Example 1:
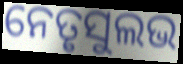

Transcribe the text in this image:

ନେତୃସୁଲଭ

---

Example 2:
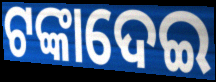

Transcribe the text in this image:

ଟଙ୍କାଦେଇ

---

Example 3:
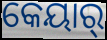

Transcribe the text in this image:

କେୟାର୍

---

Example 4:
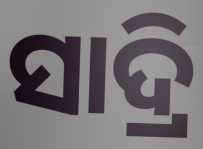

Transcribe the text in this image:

ସାଦ୍ରି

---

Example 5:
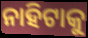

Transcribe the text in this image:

ନାହିଟାକୁ